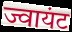
ज्वायंट